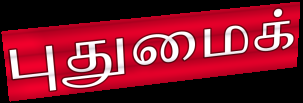
புதுமைக்